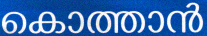
കൊത്താൻ